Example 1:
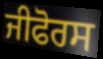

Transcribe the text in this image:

ਜੀਫੋਰਸ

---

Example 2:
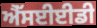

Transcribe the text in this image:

ਐੱਸਈਈਡੀ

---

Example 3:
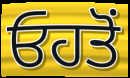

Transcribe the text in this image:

ਓਹਤੋਂ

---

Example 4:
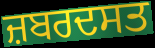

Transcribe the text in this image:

ਜ਼ਬਰਦਸਤ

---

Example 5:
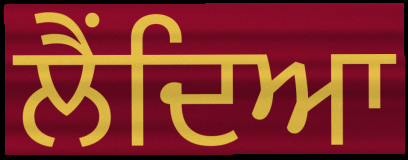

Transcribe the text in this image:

ਲੈਂਦਿਆ